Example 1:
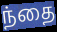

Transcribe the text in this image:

ந்தை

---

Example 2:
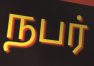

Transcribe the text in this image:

நபர்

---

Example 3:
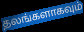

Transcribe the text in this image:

தலங்களாகவும்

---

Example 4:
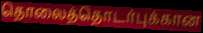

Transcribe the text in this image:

தொலைத்தொடர்புக்கான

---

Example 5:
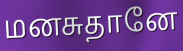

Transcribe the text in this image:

மனசுதானே